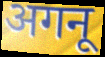
अगनू